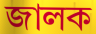
জালক